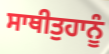
ਸਾਥੀਤੁਹਾਨੂੰ